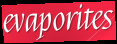
evaporites